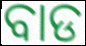
ବାଡ